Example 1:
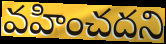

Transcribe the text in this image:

వహించదని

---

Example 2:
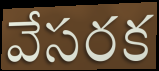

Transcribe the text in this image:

వేసరక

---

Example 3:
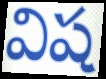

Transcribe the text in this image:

విష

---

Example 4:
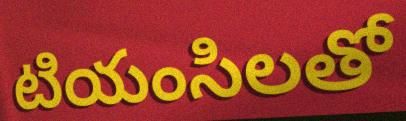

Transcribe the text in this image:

టియంసిలతో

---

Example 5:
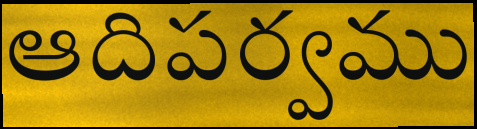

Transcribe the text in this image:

ఆదిపర్వము